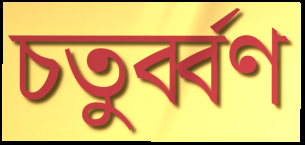
চতুর্ব্বণ